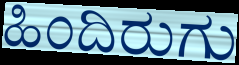
ಹಿಂದಿರುಗು